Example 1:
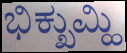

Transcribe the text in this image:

ಭಿಕ್ಖುಮ್ಹಿ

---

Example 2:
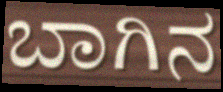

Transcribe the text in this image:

ಬಾಗಿನ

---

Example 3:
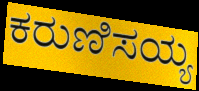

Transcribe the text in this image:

ಕರುಣಿಸಯ್ಯ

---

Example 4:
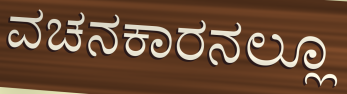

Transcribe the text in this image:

ವಚನಕಾರನಲ್ಲೂ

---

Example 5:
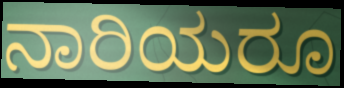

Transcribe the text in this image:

ನಾರಿಯರೂ